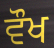
ਵੌਖ